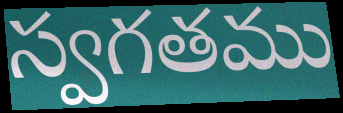
స్వగతము